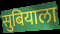
सुबियाला